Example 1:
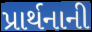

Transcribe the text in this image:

પ્રાર્થનાની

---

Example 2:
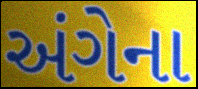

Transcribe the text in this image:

અંગેના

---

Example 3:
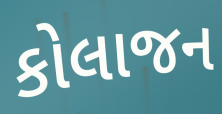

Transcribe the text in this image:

કોલાજન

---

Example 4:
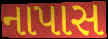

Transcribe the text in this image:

નાપાસ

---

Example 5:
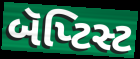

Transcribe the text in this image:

બૅપ્ટિસ્ટ